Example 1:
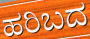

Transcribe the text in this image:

ಹರಿಬದ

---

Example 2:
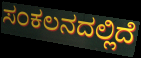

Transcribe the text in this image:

ಸಂಕಲನದಲ್ಲಿದೆ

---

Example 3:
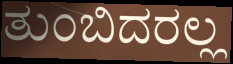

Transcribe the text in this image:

ತುಂಬಿದರಲ್ಲ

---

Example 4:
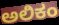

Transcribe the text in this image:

ಅಲಿಕಂ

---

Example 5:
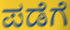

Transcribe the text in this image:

ಪಡೆಗೆ